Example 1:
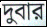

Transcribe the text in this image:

দুবার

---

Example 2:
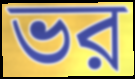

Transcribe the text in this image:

ভর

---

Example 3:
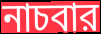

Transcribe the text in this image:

নাচবার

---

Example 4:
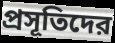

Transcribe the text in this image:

প্রসূতিদের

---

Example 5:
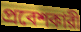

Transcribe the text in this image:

প্রবেশকারী